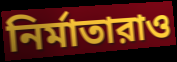
নির্মাতারাও